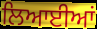
ਲਿਆਈਆਂ